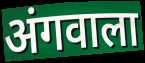
अंगवाला